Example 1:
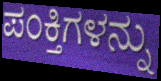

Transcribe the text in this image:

ಪಂಕ್ತಿಗಳನ್ನು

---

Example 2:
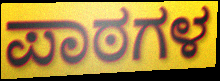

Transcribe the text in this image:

ಪಾಠಗಳ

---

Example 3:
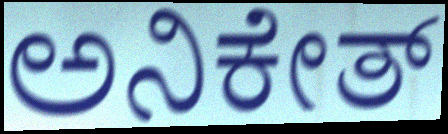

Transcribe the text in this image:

ಅನಿಕೇತ್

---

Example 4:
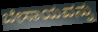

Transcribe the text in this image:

ಬೇಸಾಯವನ್ನು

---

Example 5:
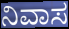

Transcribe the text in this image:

ನಿವಾಸ